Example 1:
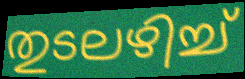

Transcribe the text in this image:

തുടലഴിച്ച്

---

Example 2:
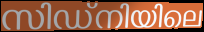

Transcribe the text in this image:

സിഡ്നിയിലെ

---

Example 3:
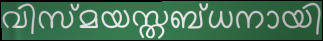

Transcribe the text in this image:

വിസ്മയസ്തബ്ധനായി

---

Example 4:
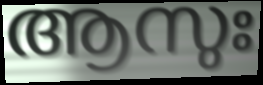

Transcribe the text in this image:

ആസുഃ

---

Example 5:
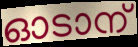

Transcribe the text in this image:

ഓടാന്